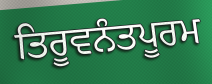
ਤਿਰੂਵਨੰਤਪੂਰਮ